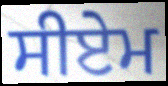
ਸੀਏਮ